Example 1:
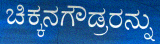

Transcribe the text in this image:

ಚಿಕ್ಕನಗೌಡ್ರರನ್ನು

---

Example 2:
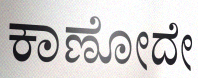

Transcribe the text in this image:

ಕಾಣೋದೇ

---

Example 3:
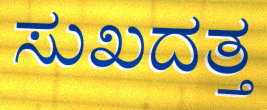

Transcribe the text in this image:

ಸುಖದತ್ತ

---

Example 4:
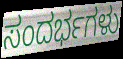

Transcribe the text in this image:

ಸಂದರ್ಭಗಳು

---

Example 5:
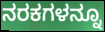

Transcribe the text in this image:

ನರಕಗಳನ್ನೂ